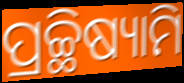
ପ୍ରଚ୍ଛିଷ୍ୟାମି